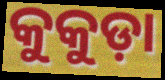
କୁକୁଡ଼ା